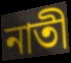
নাতী